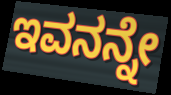
ಇವನನ್ನೇ